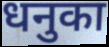
धनुका